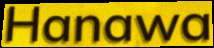
Hanawa